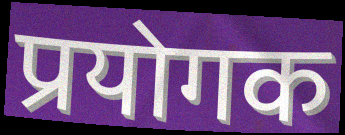
प्रयोगक